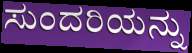
ಸುಂದರಿಯನ್ನು